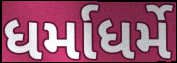
ધર્માધર્મે